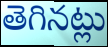
తెగినట్లు